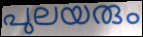
പുലയരും